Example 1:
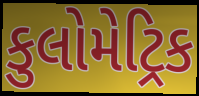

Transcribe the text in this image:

કુલોમેટ્રિક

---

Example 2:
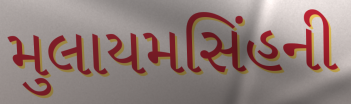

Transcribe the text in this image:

મુલાયમસિંહની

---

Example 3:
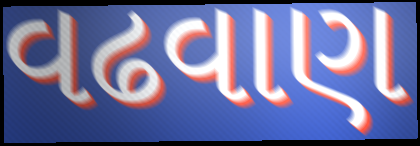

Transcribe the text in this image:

વઢવાણ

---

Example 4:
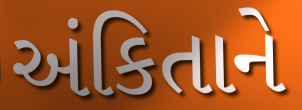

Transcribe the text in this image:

અંકિતાને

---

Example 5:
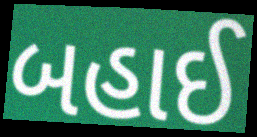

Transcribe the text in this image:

બહાઈ